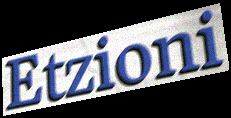
Etzioni